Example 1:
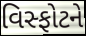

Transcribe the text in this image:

વિસ્ફોટને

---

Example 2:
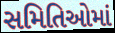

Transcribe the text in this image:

સમિતિઓમાં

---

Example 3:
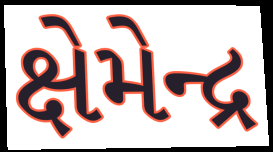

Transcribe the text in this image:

ક્ષેમેન્દ્ર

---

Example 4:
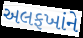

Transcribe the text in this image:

અલફખાંને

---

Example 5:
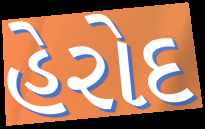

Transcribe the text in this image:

હેરોદ